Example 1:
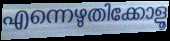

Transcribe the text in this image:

എന്നെഴുതിക്കോളൂ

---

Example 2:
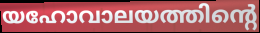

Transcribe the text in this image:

യഹോവാലയത്തിന്റെ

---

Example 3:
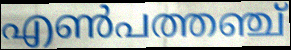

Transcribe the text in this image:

എൺപത്തഞ്ച്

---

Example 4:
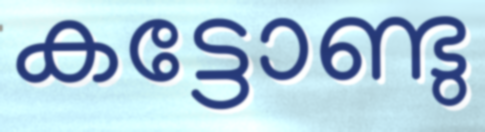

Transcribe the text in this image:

കട്ടോണ്ടു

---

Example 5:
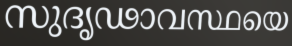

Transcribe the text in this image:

സുദൃഢാവസ്ഥയെ